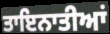
ਤਾਇਨਾਤੀਆਂ